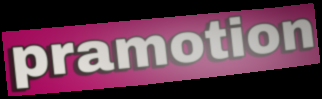
pramotion